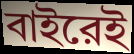
বাইরেই